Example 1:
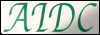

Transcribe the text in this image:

AIDC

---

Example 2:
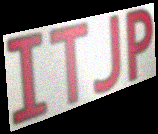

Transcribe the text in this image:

ITJP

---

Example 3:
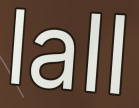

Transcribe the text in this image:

lall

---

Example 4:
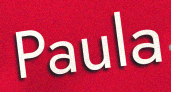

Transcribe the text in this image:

Paula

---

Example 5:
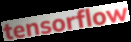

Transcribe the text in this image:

tensorflow